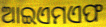
ଆଇଏମଏଫ